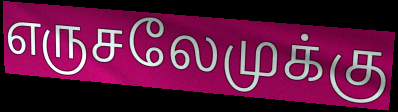
எருசலேமுக்கு